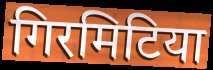
गिरमिटिया